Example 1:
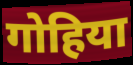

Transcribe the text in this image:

गोहिया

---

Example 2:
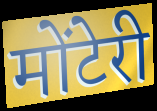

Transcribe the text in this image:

मोंटेरी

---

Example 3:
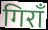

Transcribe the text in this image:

गिराँ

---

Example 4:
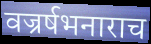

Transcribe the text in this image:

वज्रर्षभनाराच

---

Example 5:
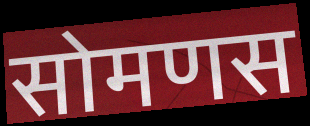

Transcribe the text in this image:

सोमणस